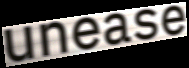
unease